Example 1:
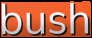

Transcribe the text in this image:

bush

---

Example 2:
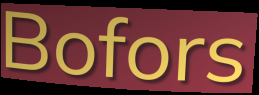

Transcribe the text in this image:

Bofors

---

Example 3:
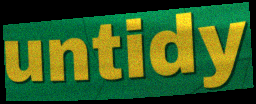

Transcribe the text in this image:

untidy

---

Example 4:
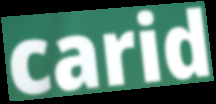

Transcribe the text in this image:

carid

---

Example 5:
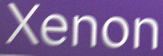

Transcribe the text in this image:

Xenon